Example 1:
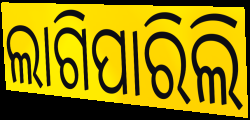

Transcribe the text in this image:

ଲାଗିପାରିଲି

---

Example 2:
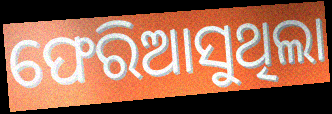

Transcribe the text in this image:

ଫେରିଆସୁଥିଲା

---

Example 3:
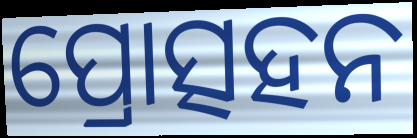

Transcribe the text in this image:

ପ୍ରୋତ୍ସହନ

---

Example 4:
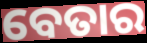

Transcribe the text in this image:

ବେତାର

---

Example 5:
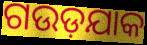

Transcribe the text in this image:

ଗଉଡ଼ଯାକ